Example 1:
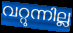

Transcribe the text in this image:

വറ്റുന്നില്ല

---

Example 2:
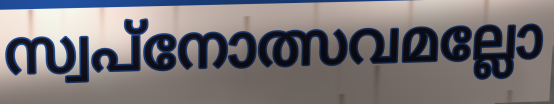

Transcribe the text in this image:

സ്വപ്നോത്സവമല്ലോ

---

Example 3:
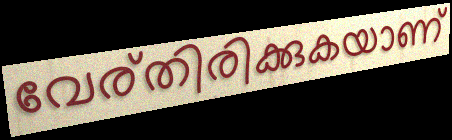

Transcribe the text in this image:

വേര്തിരിക്കുകയാണ്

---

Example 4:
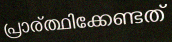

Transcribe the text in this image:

പ്രാര്ത്ഥിക്കേണ്ടത്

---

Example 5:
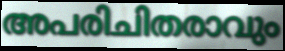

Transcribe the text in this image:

അപരിചിതരാവും